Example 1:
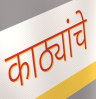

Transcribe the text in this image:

काठ्यांचे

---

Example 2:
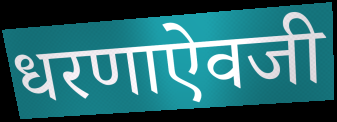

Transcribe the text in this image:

धरणाऐवजी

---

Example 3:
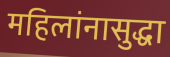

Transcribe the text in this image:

महिलांनासुद्धा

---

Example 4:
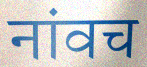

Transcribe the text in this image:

नांवच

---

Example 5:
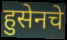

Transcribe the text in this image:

हुसेनचे